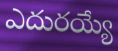
ఎదురయ్యే